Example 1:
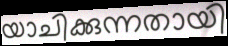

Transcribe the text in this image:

യാചിക്കുന്നതായി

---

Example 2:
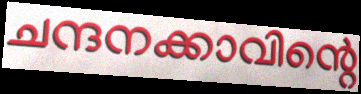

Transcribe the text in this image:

ചന്ദനക്കാവിന്റെ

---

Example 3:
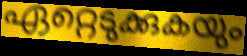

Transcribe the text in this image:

ഏറ്റെടുക്കുകയും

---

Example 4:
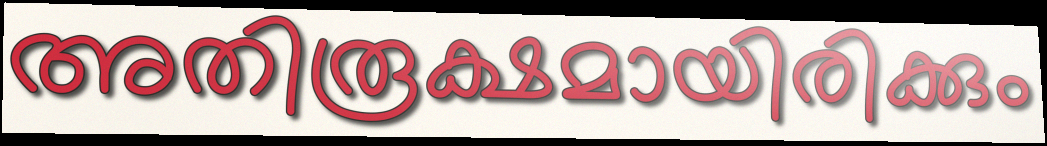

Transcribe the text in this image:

അതിരൂക്ഷമായിരിക്കും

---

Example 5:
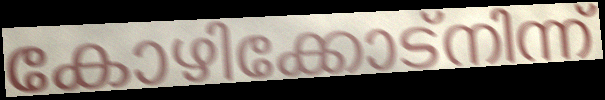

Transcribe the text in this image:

കോഴിക്കോട്നിന്ന്